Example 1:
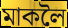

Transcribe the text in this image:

মাকলৈ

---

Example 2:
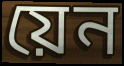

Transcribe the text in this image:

য়েন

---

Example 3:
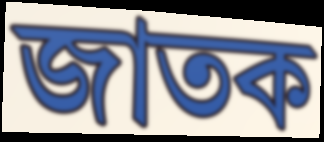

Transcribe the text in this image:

জাতক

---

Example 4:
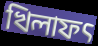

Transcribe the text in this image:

খিলাফৎ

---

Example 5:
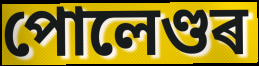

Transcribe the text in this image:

পোলেণ্ডৰ